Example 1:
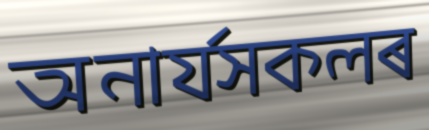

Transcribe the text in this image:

অনাৰ্যসকলৰ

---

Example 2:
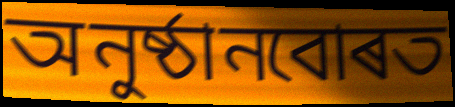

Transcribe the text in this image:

অনুষ্ঠানবোৰত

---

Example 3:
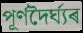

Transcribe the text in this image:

পূৰ্ণদৈৰ্ঘ্যৰ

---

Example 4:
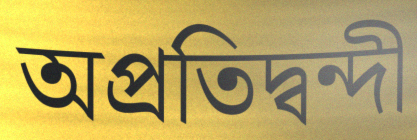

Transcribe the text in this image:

অপ্ৰতিদ্বন্দী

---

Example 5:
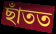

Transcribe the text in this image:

ছাঁতত